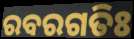
ରବରଗତିଃ